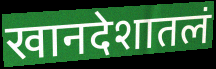
खानदेशातलं